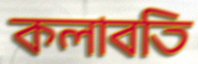
কলাবতি